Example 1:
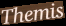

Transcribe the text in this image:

Themis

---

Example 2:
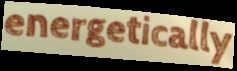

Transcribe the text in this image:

energetically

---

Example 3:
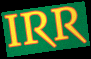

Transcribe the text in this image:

IRR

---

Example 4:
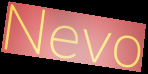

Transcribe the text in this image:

Nevo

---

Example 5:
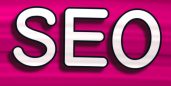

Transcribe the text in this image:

SEO